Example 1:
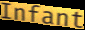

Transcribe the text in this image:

Infant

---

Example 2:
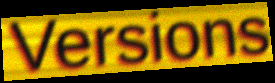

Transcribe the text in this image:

Versions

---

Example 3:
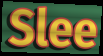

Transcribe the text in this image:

Slee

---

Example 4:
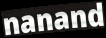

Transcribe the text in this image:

nanand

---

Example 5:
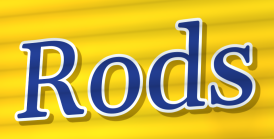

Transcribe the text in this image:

Rods